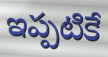
ఇప్పటికే